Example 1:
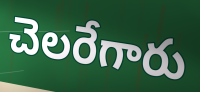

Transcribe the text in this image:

చెలరేగారు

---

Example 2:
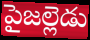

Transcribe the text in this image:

పైజల్లెడు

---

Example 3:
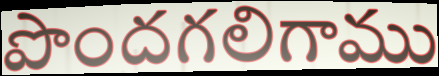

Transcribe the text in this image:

పొందగలిగాము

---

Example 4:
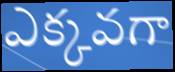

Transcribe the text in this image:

ఎక్కవగా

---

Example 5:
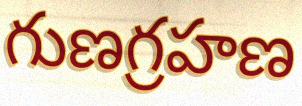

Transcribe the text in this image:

గుణగ్రహణ